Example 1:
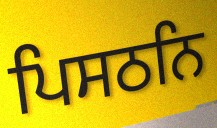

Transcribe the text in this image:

ਪਿਸਠਨਿ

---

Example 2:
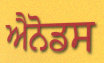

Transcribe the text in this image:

ਐਨੋਡਸ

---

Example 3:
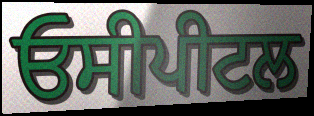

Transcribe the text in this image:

ਓਸੀਪੀਟਲ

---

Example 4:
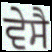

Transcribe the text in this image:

ਵੇਸੈ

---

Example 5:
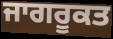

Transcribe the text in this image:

ਜਾਗਰੂਕਤ